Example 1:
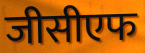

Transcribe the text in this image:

जीसीएफ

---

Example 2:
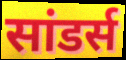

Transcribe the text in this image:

सांडर्स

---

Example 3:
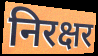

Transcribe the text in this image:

निरक्षर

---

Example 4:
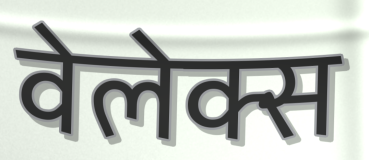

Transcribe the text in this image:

वेलेक्स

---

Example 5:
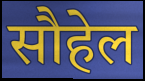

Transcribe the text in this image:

सौहेल